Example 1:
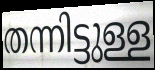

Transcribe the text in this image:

തന്നിട്ടുള്ള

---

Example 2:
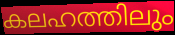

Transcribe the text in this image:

കലഹത്തിലും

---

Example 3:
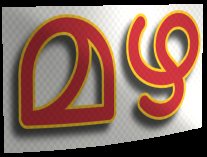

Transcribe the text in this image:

മഴ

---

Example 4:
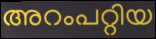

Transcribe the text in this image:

അറംപറ്റിയ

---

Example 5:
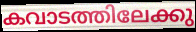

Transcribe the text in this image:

കവാടത്തിലേക്കു